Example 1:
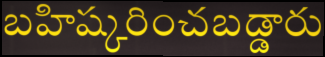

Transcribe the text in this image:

బహిష్కరించబడ్డారు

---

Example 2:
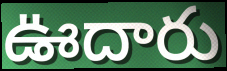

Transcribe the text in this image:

ఊదారు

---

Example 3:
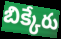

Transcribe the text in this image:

బిక్కేరు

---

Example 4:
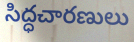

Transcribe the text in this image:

సిద్ధచారణులు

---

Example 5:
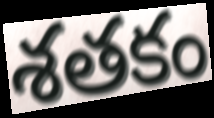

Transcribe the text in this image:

శతకం